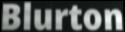
Blurton